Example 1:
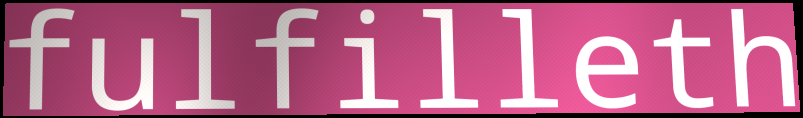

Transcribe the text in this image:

fulfilleth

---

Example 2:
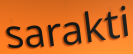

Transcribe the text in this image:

sarakti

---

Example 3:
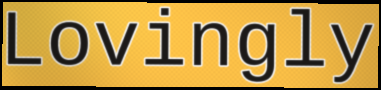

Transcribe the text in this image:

Lovingly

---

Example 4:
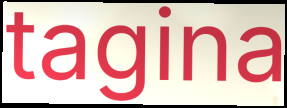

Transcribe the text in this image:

tagina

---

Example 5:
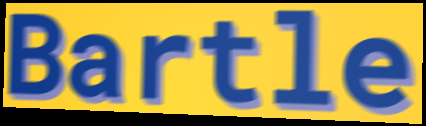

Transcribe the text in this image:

Bartle